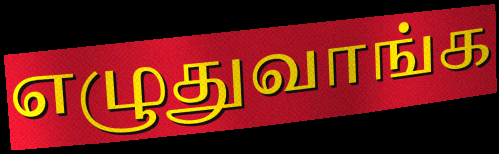
எழுதுவாங்க